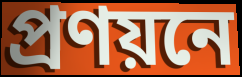
প্রণয়নে